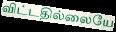
விட்டதில்லையே